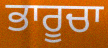
ਭਾਰੂਚਾ